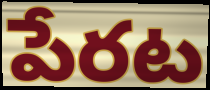
పేరట